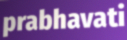
prabhavati